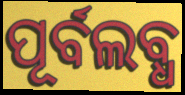
ପୂର୍ବଲବ୍ଧ